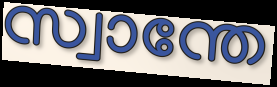
സ്വാന്തേ